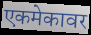
एकमेकावर